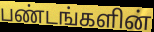
பண்டங்களின்